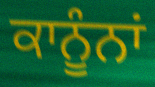
ਕਾਨੂੰਨਾਂ